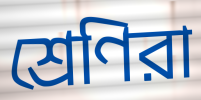
শ্রেণিরা